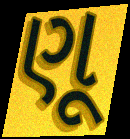
ણૂ